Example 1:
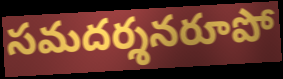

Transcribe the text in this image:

సమదర్శనరూపో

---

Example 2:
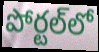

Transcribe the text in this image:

పోర్టల్‌లో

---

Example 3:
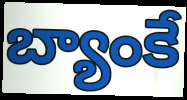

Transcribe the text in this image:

బ్యాంకే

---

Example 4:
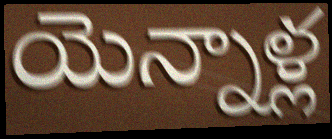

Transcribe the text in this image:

యెన్నాళ్ల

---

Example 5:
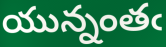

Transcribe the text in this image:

యున్నంతఁ